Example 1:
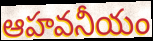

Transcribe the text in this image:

ఆహవనీయం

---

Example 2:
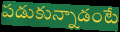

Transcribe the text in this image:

పడుకున్నాడంటే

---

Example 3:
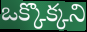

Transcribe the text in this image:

ఒక్కొక్కని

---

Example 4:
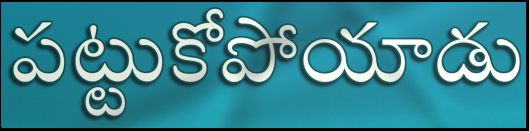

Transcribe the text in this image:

పట్టుకోపోయాడు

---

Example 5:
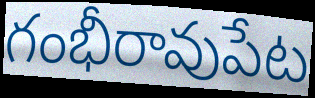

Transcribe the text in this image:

గంభీరావుపేట